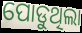
ପୋଡୁଥିଲା